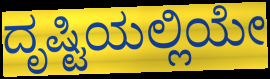
ದೃಷ್ಟಿಯಲ್ಲಿಯೇ